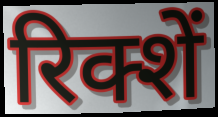
रिक्शें